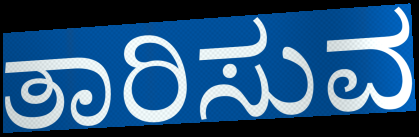
ತಾರಿಸುವ